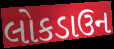
લોકડાઉન